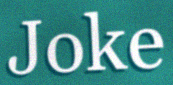
Joke